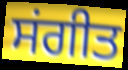
ਸਂਗੀਤ